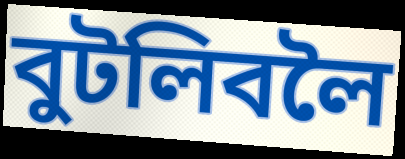
বুটলিবলৈ